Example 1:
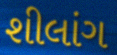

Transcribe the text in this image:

શીલાંગ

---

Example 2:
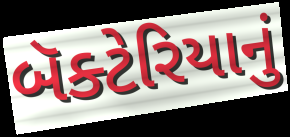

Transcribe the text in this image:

બૅક્ટેરિયાનું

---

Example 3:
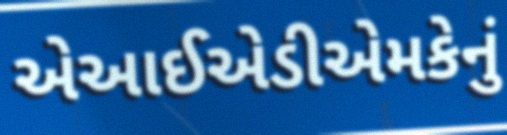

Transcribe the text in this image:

એઆઈએડીએમકેનું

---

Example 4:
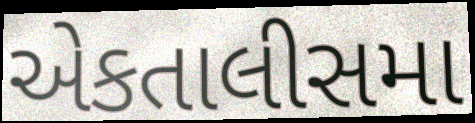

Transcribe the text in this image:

એકતાલીસમા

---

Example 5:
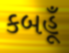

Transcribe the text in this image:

કબહૂઁ